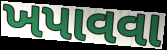
ખપાવવા